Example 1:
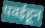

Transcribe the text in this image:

पवईहून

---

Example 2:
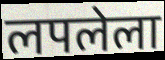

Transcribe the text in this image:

लपलेला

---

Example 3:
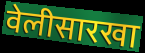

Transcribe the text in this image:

वेलीसारखा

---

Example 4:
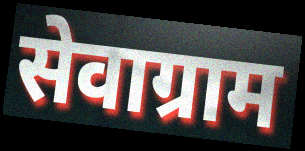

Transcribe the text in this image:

सेवाग्राम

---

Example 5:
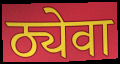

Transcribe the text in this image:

ठ्येवा